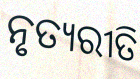
ନୃତ୍ୟରୀତି